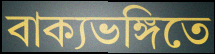
বাক্যভঙ্গিতে